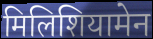
मिलिशियामेन